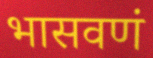
भासवणं